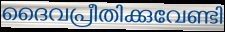
ദൈവപ്രീതിക്കുവേണ്ടി